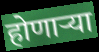
होणार्‍या